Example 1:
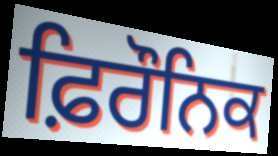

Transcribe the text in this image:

ਫ਼ਿਰੌਨਿਕ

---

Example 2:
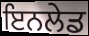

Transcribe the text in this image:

ਇਨਲੇਡ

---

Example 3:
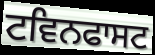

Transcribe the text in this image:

ਟਵਿਨਫਾਸਟ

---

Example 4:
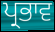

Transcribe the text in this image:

ਪ੍ਰਭਾਵ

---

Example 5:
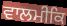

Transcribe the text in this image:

ਵਾਲਮੀਕਿ